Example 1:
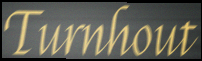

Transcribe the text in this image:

Turnhout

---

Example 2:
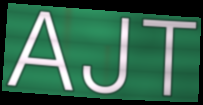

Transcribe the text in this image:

AJT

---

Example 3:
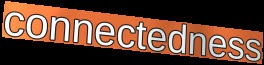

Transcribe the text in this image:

connectedness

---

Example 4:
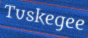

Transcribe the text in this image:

Tuskegee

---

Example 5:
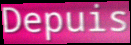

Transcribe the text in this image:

Depuis